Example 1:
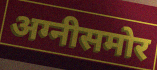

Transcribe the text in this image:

अग्नीसमोर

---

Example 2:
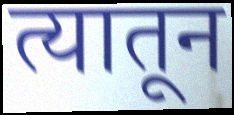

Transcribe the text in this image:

त्‍यातून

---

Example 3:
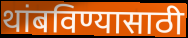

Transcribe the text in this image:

थांबविण्यासाठी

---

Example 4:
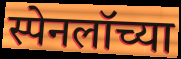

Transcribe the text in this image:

स्पेनलॉच्या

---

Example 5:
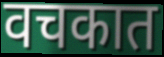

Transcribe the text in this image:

वचकात